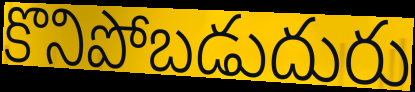
కొనిపోబడుదురు